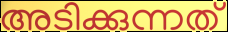
അടിക്കുന്നത്